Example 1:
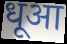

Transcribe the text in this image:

धूआ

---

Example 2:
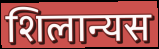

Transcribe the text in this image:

शिलान्यस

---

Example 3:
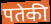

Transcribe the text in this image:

पतेकी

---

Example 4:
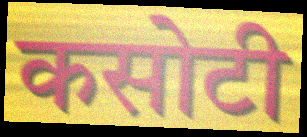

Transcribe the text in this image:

कसोटी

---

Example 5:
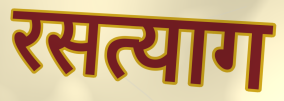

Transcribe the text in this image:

रसत्याग